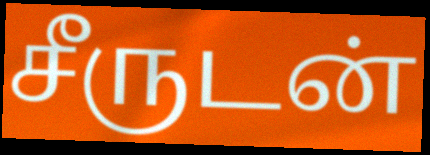
சீருடன்